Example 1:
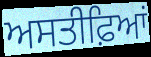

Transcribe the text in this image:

ਅਸਤੀਫ਼ਿਆਂ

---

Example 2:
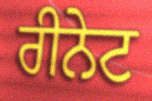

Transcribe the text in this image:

ਰੀਨੇਟ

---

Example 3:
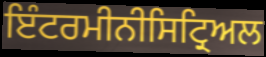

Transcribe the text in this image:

ਇੰਟਰਮੀਨੀਸਿਟ੍ਰਿਅਲ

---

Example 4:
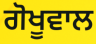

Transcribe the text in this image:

ਗੋਖੂਵਾਲ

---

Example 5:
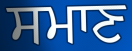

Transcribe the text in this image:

ਸਮਾਣ